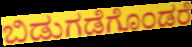
ಬಿಡುಗಡೆಗೊಂಡರೆ